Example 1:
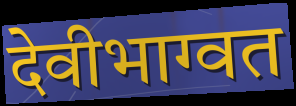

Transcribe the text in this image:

देवीभाग्वत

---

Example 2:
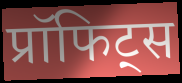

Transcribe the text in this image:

प्रॉफिट्स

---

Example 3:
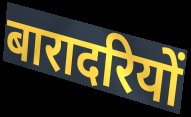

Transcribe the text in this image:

बारादरियों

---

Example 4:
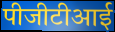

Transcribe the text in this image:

पीजीटीआई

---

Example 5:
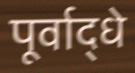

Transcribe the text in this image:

पूर्वाद्धे